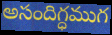
అసందిగ్ధముగ